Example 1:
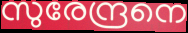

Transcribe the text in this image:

സുരേന്ദ്രനെ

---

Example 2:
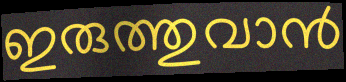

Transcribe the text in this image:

ഇരുത്തുവാൻ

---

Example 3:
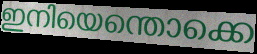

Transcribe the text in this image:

ഇനിയെന്തൊക്കെ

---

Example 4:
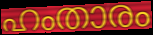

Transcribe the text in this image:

ഹംതാരം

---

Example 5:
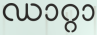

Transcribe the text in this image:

ഡാറ്റാ